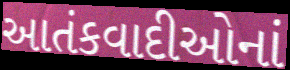
આતંકવાદીઓનાં